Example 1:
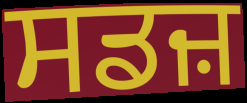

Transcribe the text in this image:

ਸਡਜ਼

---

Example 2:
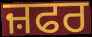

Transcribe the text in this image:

ਜ਼ਫਰ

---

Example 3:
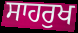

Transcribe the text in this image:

ਸਾਹਰੁਖ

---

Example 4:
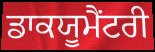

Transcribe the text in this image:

ਡਾਕਯੂਮੈਂਟਰੀ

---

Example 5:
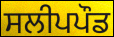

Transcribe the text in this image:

ਸਲੀਪਪੌਡ